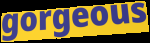
gorgeous